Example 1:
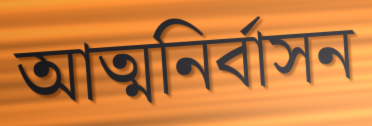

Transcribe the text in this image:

আত্মনির্বাসন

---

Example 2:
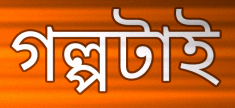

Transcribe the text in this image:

গল্পটাই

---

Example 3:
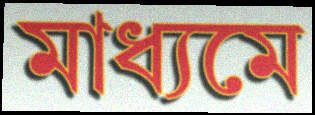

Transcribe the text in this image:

মাধ্যমে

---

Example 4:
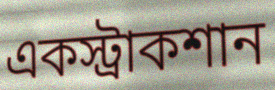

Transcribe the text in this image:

একস্ট্রাকশান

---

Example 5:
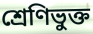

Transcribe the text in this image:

শ্রেণিভুক্ত